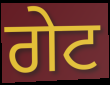
ਗੇਟ